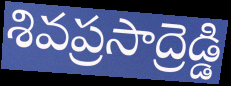
శివప్రసాద్రెడ్డి